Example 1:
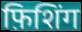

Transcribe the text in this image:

फ़िशिंग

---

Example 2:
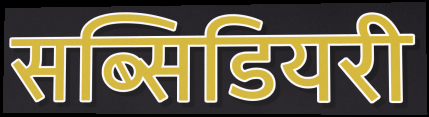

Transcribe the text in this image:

सब्सिडियरी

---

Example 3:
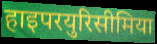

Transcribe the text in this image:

हाइपरयुरिसीमिया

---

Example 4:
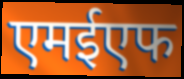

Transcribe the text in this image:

एमईएफ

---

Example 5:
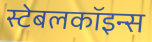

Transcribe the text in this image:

स्टेबलकॉइन्स